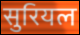
सुरियल